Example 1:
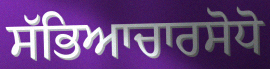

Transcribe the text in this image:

ਸੱਭਿਆਚਾਰਸੋਧੋ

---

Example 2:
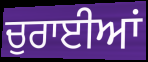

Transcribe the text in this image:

ਚੁਰਾਈਆਂ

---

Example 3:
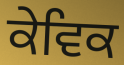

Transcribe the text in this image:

ਕੇਵਿਕ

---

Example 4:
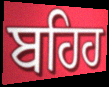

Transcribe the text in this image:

ਬਹਿਹ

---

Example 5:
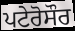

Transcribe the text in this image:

ਪਟੇਰੋਸੌਰ